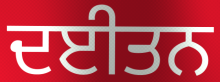
ਦਈਤਨ